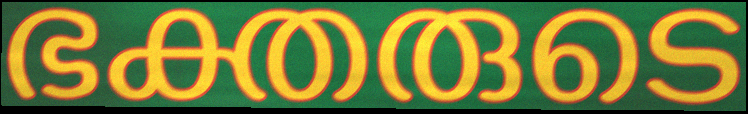
ഭക്തരുടെ